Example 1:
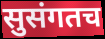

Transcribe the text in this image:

सुसंगतच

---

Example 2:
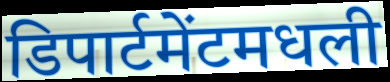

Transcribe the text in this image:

डिपार्टमेंटमधली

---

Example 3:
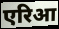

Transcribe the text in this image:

एरिआ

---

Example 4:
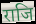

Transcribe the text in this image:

राजि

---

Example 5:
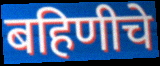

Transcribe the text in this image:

बहिणीचे